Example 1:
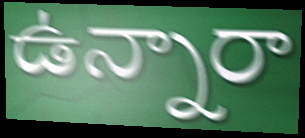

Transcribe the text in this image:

ఉన్నారా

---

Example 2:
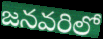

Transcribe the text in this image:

జనవరిలో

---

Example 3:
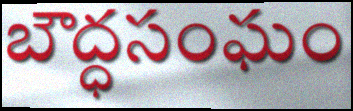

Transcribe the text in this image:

బౌద్ధసంఘం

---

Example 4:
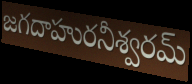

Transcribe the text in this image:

జగదాహురనీశ్వరమ్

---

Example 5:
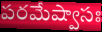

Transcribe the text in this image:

పరమేష్వాసః